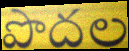
పొదల